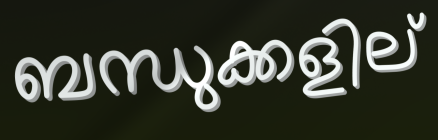
ബന്ധുക്കളില്